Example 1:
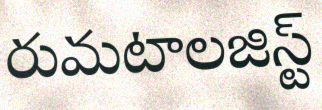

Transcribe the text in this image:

రుమటాలజిస్ట్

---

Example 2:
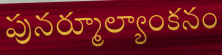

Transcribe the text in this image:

పునర్మూల్యాంకనం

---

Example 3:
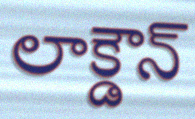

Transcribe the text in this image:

లాక్డౌన్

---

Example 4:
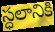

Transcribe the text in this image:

స్ధలానికి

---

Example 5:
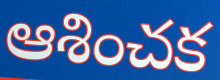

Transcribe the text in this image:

ఆశించక